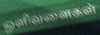
ஒளிவளைகள்